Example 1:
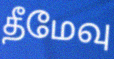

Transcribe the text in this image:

தீமேவு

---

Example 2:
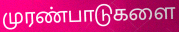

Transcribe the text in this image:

முரண்பாடுகளை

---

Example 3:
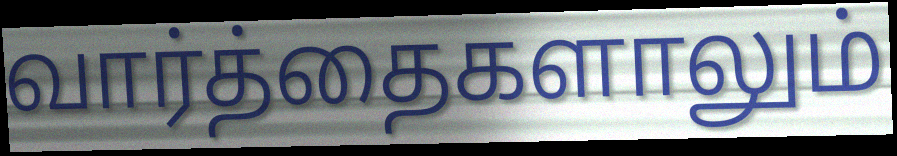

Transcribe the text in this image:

வார்த்தைகளாலும்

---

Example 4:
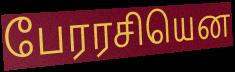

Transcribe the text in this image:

பேரரசியென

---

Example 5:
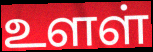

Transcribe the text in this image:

உளள்